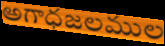
అగాధజలముల